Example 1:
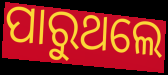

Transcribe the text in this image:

ପାରୁଥଲେ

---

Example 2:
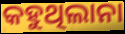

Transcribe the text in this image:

କହୁଥିଲାନା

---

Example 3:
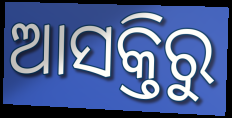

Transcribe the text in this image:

ଆସକ୍ତିରୁ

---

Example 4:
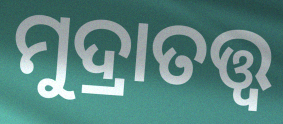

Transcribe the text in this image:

ମୁଦ୍ରାତତ୍ତ୍ବ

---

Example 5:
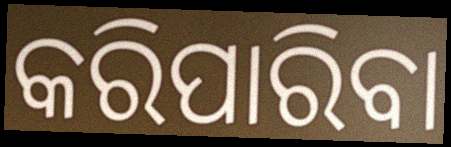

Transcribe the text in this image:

କରିପାରିବା